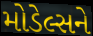
મોડેલ્સને